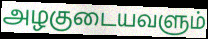
அழகுடையவளும்